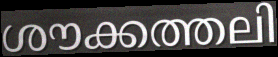
ശൗക്കത്തലി